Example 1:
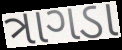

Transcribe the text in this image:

ત્રાગડા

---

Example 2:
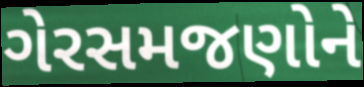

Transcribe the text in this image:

ગેરસમજણોને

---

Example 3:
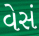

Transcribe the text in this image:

વેસં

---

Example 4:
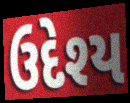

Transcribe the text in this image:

ઉદેશ્ય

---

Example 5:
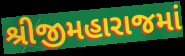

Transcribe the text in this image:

શ્રીજીમહારાજમાં